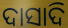
ଦାସାଦି